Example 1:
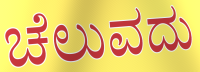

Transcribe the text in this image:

ಚೆಲುವದು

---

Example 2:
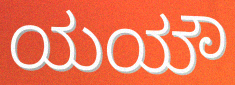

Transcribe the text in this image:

ಯಯೌ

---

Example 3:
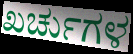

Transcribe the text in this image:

ಖರ್ಚುಗಳ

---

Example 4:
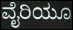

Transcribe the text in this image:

ವೈರಿಯೂ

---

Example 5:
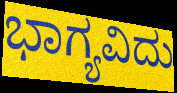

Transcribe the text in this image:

ಭಾಗ್ಯವಿದು